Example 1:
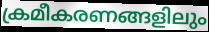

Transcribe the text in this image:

ക്രമീകരണങ്ങളിലും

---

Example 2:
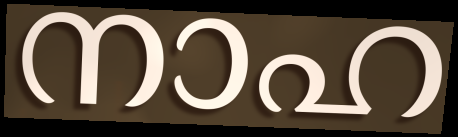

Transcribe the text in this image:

നാഹ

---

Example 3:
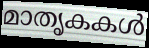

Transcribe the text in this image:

മാതൃകകൾ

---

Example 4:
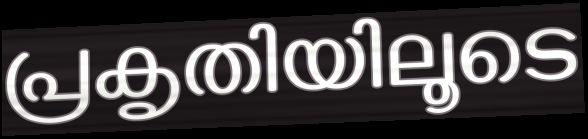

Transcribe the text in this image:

പ്രകൃതിയിലൂടെ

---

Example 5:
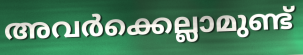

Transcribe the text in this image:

അവർക്കെല്ലാമുണ്ട്